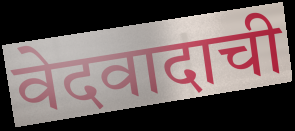
वेदवादाची